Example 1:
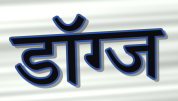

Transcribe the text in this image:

डॉग्ज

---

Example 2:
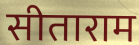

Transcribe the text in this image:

सीताराम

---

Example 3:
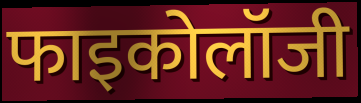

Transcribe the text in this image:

फाइकोलॉजी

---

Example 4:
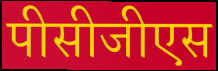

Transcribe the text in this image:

पीसीजीएस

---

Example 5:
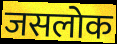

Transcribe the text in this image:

जसलोक